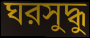
ঘরসুদ্ধু